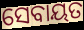
ସେବାୟତ